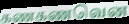
கணகணவென